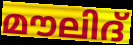
മൗലിദ്